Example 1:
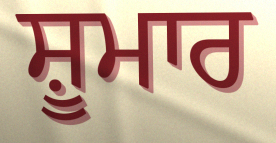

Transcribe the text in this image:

ਸ਼ੂਮਾਰ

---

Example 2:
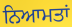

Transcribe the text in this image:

ਨਿਆਮਤਾਂ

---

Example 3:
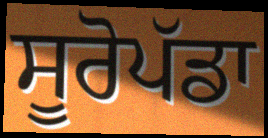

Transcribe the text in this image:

ਸੂਰੋਪੱਡਾ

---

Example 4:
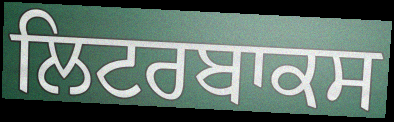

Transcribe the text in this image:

ਲਿਟਰਬਾਕਸ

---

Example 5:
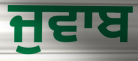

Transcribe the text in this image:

ਜੁਵਾਬ